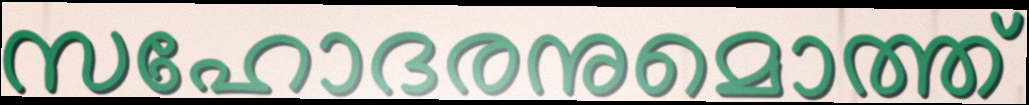
സഹോദരനുമൊത്ത്